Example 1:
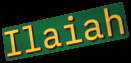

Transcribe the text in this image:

Ilaiah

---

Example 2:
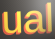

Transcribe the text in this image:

ual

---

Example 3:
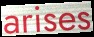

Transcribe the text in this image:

arises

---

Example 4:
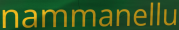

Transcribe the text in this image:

nammanellu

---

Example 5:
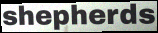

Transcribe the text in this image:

shepherds